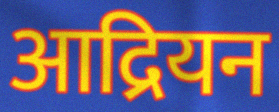
आद्रियन